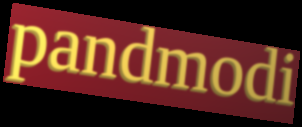
pandmodi